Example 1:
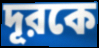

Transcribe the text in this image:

দূরকে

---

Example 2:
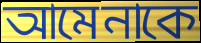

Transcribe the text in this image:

আমেনাকে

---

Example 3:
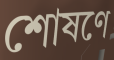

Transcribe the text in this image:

শোষণে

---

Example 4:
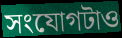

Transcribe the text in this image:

সংযোগটাও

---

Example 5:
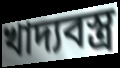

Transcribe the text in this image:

খাদ্যবস্ত্র